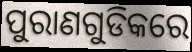
ପୁରାଣଗୁଡିକରେ